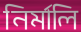
নিৰ্মালি